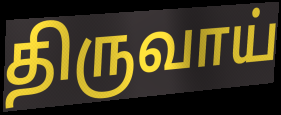
திருவாய்